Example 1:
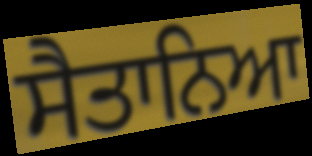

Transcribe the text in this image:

ਸੈਤਾਨਿਆ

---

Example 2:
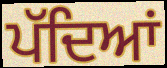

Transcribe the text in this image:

ਪੱਦਿਆਂ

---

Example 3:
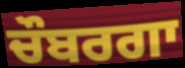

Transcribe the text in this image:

ਚੌਬਰਗਾ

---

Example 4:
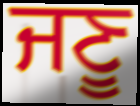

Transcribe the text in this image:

ਜਣੂ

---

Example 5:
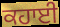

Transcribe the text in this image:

ਕਹਾਈ